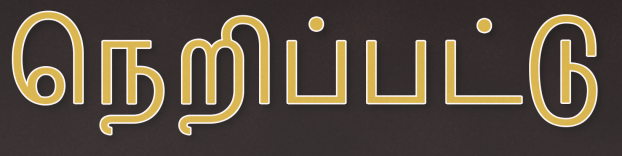
நெறிப்பட்டு